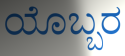
ಯೊಬ್ಬರ